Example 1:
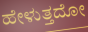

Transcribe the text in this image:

ಹೇಳುತ್ತದೋ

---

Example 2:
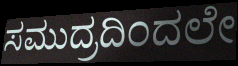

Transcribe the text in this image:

ಸಮುದ್ರದಿಂದಲೇ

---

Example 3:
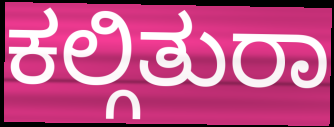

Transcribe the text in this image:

ಕಲ್ಗಿತುರಾ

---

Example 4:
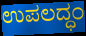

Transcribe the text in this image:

ಉಪಲದ್ಧಂ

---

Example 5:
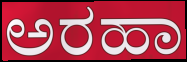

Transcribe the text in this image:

ಅರಹಾ